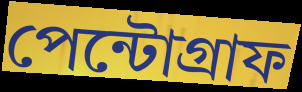
পেন্টোগ্রাফ